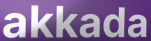
akkada